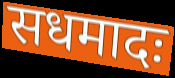
सधमादः